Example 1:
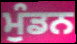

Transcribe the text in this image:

ਮੁੰਡਨ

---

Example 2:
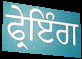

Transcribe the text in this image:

ਫ੍ਰੇਇੰਗ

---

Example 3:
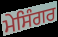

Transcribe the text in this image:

ਮੇਸਿੰਗਰ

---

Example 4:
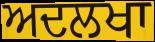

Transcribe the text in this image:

ਅਦਲਖਾ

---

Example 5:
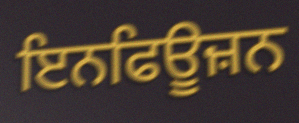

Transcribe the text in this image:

ਇਨਫਿਊਜ਼ਨ